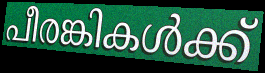
പീരങ്കികൾക്ക്